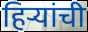
हिऱ्यांची